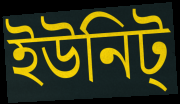
ইউনিট্